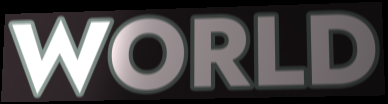
WORLD